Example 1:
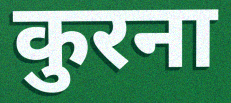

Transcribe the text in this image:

कुरना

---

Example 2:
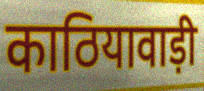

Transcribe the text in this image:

काठियावाड़ी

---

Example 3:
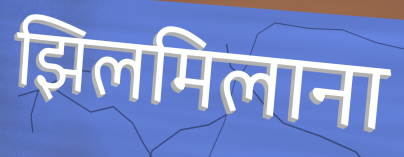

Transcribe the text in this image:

झिलमिलाना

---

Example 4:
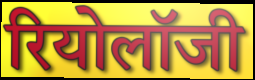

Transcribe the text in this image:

रियोलॉजी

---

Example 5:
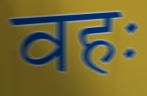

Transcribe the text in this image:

वहः